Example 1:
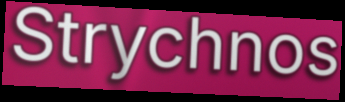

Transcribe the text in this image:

Strychnos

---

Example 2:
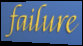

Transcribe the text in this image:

failure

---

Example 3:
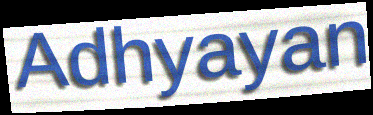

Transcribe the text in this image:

Adhyayan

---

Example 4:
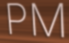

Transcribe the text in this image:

PM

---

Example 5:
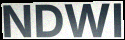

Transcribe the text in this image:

NDWI